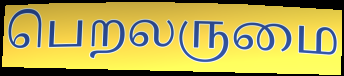
பெறலருமை